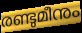
രണ്ടുമീനും